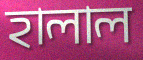
হালাল